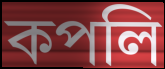
কপলি